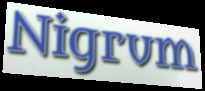
Nigrum